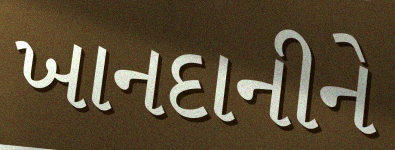
ખાનદાનીને